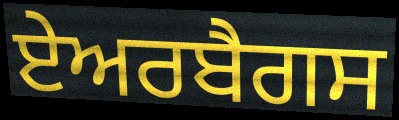
ਏਅਰਬੈਗਸ